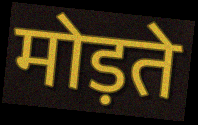
मोड़ते